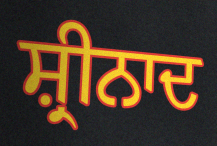
ਸ਼੍ਰੀਨਾਦ